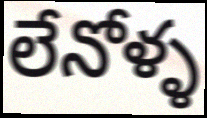
లేనోళ్ళ